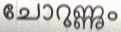
ചോറുണ്ണും